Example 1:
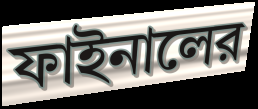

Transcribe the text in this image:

ফাইনালের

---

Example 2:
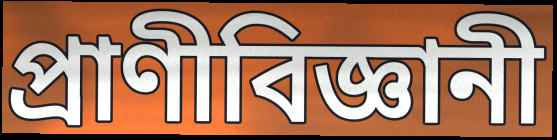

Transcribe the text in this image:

প্রাণীবিজ্ঞানী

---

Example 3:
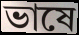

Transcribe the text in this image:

ভাষে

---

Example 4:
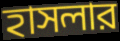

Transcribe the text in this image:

হাসলার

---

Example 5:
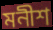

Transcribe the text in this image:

মনীশ